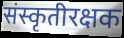
संस्कृतीरक्षक